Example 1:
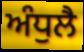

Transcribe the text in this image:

ਅੰਧੁਲੈ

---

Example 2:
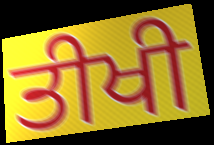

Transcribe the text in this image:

ਤੀਖੀ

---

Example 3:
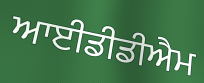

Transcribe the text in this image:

ਆਈਡੀਡੀਐਮ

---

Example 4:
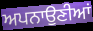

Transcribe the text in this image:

ਅਪਨਾਉਣੀਆਂ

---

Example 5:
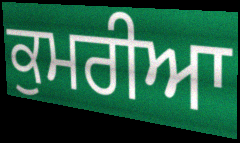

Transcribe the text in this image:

ਕੁਮਰੀਆ